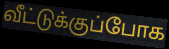
வீட்டுக்குப்போக